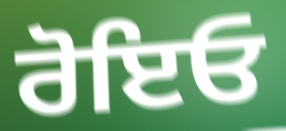
ਰੋਇਓ